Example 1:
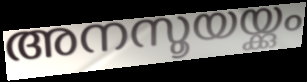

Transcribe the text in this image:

അനസൂയയ്ക്കും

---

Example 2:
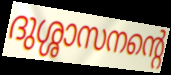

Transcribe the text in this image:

ദുശ്ശാസനന്റെ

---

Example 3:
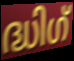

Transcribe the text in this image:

ദ്ധിഗ്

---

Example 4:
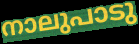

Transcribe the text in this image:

നാലുപാടു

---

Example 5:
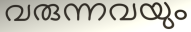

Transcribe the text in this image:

വരുന്നവയും